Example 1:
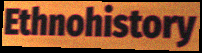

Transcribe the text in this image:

Ethnohistory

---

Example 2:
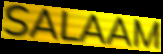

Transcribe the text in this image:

SALAAM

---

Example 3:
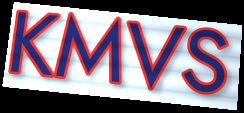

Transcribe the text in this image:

KMVS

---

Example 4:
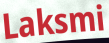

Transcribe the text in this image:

Laksmi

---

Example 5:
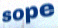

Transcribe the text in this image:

sope